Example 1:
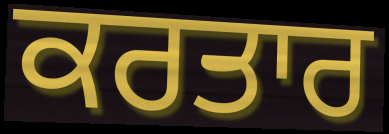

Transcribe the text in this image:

ਕਰਤਾਰ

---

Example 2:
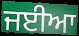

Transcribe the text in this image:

ਜਈਆ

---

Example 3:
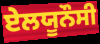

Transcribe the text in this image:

ਏਲਯੂਨੌਸੀ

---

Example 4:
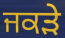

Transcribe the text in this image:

ਜਕੜੇ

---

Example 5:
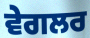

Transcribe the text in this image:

ਵੇਗਲਰ